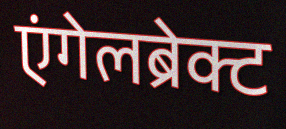
एंगेलब्रेक्ट